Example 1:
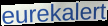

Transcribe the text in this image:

eurekalert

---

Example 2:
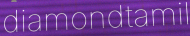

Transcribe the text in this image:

diamondtamil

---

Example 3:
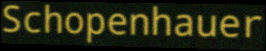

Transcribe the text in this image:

Schopenhauer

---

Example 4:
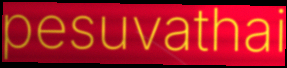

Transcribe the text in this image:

pesuvathai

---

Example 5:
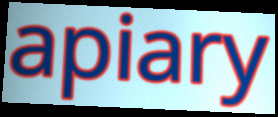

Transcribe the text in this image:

apiary